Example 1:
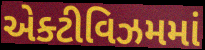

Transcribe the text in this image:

એક્ટીવિઝમમાં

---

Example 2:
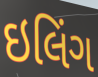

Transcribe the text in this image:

ઇલિંગ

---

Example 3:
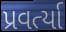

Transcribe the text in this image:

પ્રવર્ત્યા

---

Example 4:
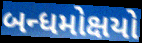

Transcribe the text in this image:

બન્ધમોક્ષયો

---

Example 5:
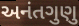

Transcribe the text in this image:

અનંતગુણુ